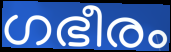
ഗഭീരം